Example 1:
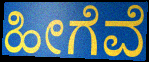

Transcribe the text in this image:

ಹೀಗೆವೆ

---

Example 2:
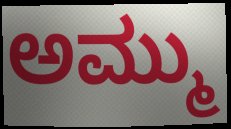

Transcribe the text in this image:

ಅಮ್ಮು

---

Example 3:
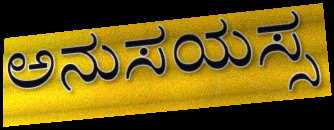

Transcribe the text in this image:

ಅನುಸಯಸ್ಸ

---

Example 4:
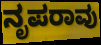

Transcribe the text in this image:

ನೃಪರಾವು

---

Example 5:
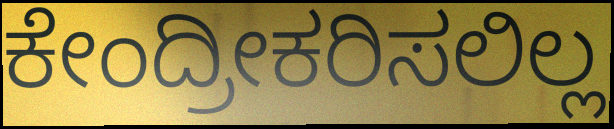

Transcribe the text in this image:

ಕೇಂದ್ರೀಕರಿಸಲಿಲ್ಲ